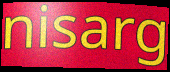
nisarg